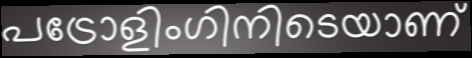
പട്രോളിംഗിനിടെയാണ്